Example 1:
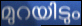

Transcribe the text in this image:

മുറയിടും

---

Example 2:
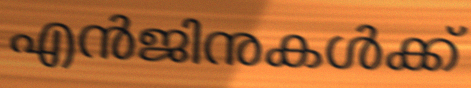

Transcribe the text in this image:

എൻജിനുകൾക്ക്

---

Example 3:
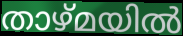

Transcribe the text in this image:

താഴ്മയിൽ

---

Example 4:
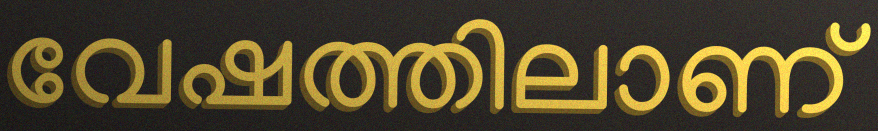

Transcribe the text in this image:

വേഷത്തിലാണ്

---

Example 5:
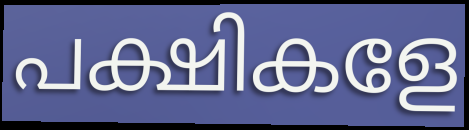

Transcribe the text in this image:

പക്ഷികളേ